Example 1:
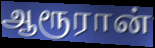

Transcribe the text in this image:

ஆரூரான்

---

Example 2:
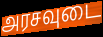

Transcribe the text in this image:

அரசவுடை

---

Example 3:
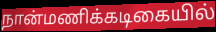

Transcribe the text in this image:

நான்மணிக்கடிகையில்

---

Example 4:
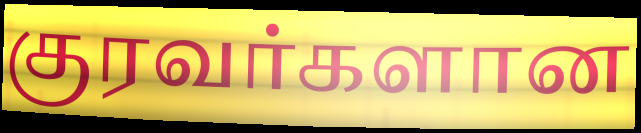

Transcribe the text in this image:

குரவர்களான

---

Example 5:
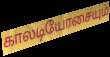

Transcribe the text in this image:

காலடியோசையும்